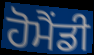
ਹੋਮੈਂਡੀ